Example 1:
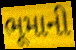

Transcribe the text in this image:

ભૂમાની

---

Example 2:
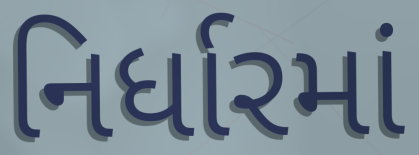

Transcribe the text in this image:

નિર્ધારમાં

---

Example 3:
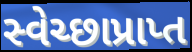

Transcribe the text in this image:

સ્વેચ્છાપ્રાપ્ત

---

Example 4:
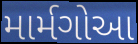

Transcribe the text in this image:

માર્મગોઆ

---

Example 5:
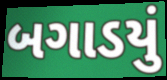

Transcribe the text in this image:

બગાડયું